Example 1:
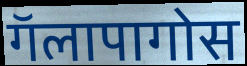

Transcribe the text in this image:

गॅलापागोस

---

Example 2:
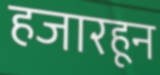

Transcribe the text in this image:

हजारहून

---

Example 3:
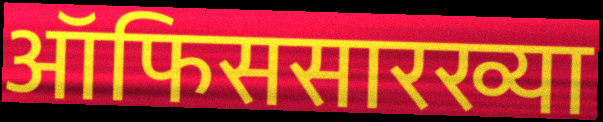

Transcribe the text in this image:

ऑफिससारख्या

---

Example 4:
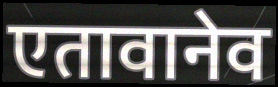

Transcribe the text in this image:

एतावानेव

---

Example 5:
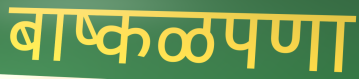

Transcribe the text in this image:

बाष्कळपणा